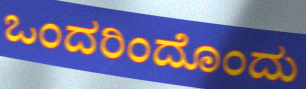
ಒಂದರಿಂದೊಂದು